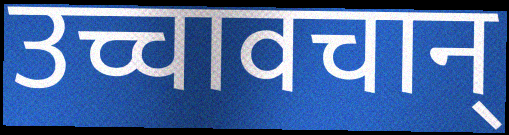
उच्चावचान्